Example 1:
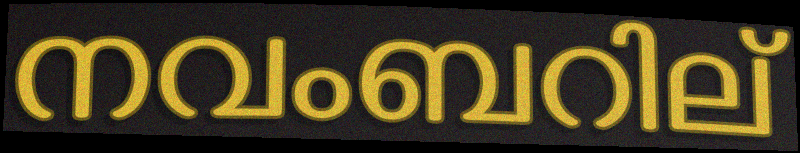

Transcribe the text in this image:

നവംബറില്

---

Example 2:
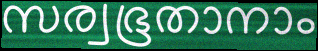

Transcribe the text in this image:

സര്വഭൂതാനാം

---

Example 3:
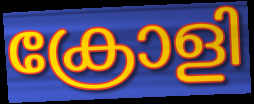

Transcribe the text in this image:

ക്രോളി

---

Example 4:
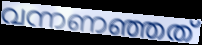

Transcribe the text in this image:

വന്നണഞ്ഞത്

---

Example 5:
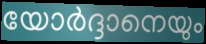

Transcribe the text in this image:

യോർദ്ദാനെയും